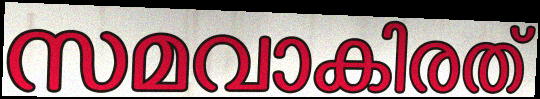
സമവാകിരത്